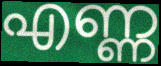
എണ്ണ